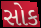
સોક